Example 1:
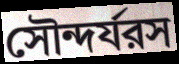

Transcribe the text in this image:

সৌন্দর্যরস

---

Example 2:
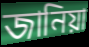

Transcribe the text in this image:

জানিয়া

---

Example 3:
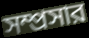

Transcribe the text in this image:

সম্প্রসার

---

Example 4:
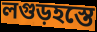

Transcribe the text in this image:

লগুড়হস্তে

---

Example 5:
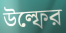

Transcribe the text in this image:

উল্ফের